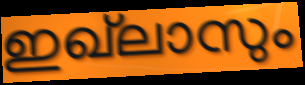
ഇഖ്‌ലാസും